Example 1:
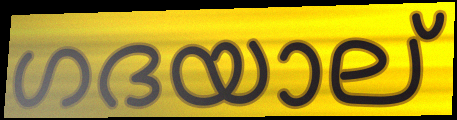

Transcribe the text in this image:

ഗദയാല്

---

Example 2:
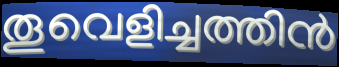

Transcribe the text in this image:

തൂവെളിച്ചത്തിൻ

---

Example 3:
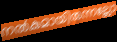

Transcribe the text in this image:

നൽകുമായിരുന്നല്ലോ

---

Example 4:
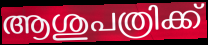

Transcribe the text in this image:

ആശുപത്രിക്ക്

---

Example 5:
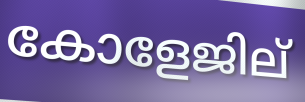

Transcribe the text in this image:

കോളേജില്